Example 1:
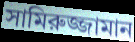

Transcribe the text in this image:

সামিরুজ্জামান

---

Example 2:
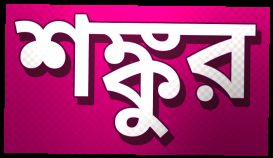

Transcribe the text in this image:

শঙ্কুর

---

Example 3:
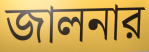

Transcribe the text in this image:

জালনার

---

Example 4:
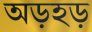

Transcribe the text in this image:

অড়হড়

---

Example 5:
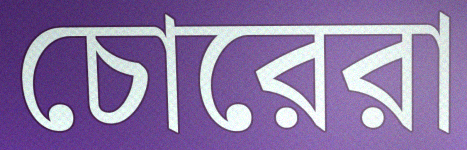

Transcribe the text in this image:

চোরেরা